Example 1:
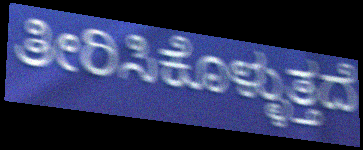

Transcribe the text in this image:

ತೀರಿಸಿಕೊಳ್ಳುತ್ತದೆ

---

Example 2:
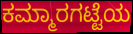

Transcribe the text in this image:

ಕಮ್ಮಾರಗಟ್ಟೆಯ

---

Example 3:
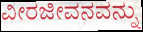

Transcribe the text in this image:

ವೀರಜೀವನವನ್ನು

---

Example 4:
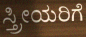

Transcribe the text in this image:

ಸ್ತ್ರೀಯರಿಗೆ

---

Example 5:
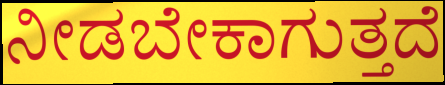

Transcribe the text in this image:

ನೀಡಬೇಕಾಗುತ್ತದೆ